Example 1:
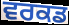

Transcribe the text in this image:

ਵਰਕਡ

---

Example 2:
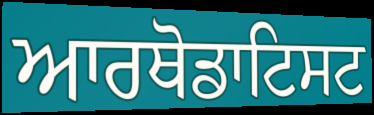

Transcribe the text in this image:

ਆਰਥੋਡਾਟਿਸਟ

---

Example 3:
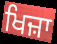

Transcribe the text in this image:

ਖਿਜ਼ਾ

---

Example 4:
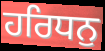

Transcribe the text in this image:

ਹਰਿਧਨੁ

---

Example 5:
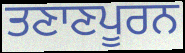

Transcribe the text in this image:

ਤਣਾਣਪੂਰਨ